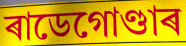
ৰাডেগোণ্ডাৰ